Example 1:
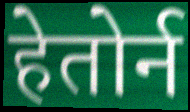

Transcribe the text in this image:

हेतोर्न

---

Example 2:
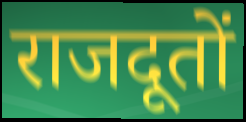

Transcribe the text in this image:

राजदूतों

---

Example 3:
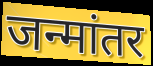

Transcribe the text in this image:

जन्मांतर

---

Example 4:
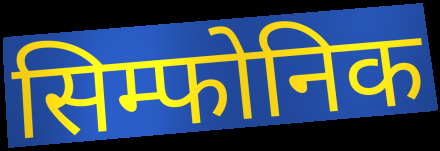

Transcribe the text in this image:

सिम्फोनिक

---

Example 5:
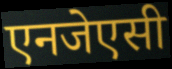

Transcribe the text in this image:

एनजेएसी